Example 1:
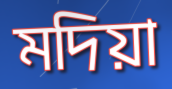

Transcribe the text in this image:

মদিয়া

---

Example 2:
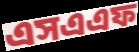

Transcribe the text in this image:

এসএএফ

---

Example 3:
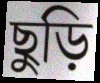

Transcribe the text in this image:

ছুড়ি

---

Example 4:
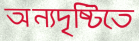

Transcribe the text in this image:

অন্যদৃষ্টিতে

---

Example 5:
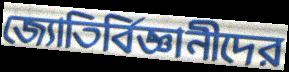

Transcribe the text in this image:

জ্যোতির্বিজ্ঞানীদের